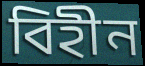
বিহীন